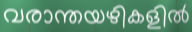
വരാന്തയഴികളിൽ